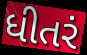
ધીતરં